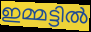
ഇമ്മട്ടിൽ